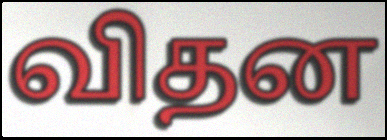
விதன